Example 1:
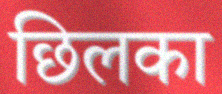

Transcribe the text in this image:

छिलका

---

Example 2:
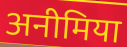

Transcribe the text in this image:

अनीमिया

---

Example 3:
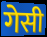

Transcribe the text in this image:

गेसी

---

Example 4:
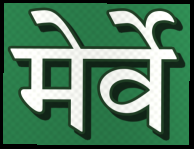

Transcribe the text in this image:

मेर्वे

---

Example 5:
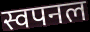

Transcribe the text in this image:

स्वपनल